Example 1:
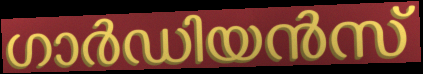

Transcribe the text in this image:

ഗാർഡിയൻസ്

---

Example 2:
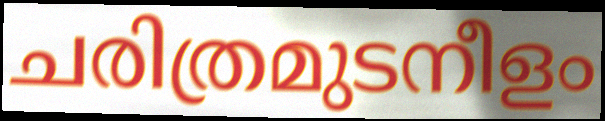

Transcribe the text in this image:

ചരിത്രമുടനീളം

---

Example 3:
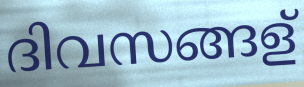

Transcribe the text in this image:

ദിവസങ്ങള്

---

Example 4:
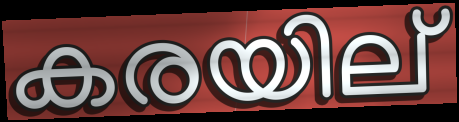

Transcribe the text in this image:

കരയില്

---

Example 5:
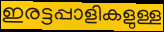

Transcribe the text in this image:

ഇരട്ടപ്പാളികളുള്ള